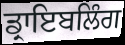
ਡ੍ਰਾਇਬਲਿੰਗ